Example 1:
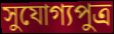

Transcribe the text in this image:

সুযোগ্যপুত্র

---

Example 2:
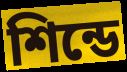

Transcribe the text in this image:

শিন্ডে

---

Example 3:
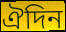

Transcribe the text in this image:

ঐদিন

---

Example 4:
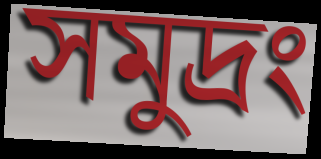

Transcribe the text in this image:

সমুদ্রং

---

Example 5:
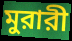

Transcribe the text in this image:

মুরারী